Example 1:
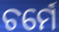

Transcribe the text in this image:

ଚର୍ମେ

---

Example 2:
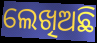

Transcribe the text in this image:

ଲେଖିଅଛି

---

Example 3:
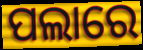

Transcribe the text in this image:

ପଲାରେ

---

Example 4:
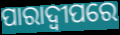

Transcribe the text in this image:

ପାରାଦ୍ୱୀପରେ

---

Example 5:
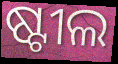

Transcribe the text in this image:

ଷ୍ଟୀଲ